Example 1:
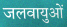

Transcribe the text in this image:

जलवायुओं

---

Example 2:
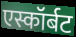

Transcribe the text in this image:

एस्कॉर्बट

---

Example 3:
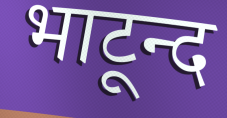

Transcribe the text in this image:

भाटून्द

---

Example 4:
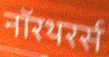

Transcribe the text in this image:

नॉरथरर्स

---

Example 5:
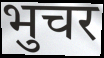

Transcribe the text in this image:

भुचर